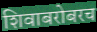
शिवाबरोबरच